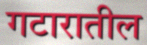
गटारातील